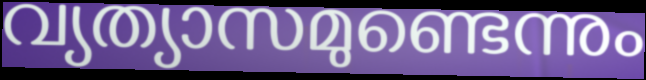
വ്യത്യാസമുണ്ടെന്നും